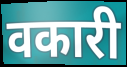
वकारी